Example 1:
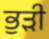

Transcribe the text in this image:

ਭੁੜੀ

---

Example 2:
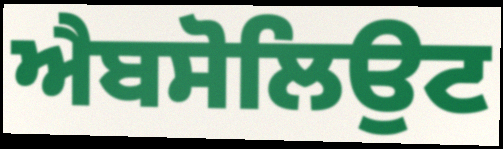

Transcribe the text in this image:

ਐਬਸੋਲਿਉਟ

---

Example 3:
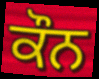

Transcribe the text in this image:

ਕੌਨ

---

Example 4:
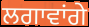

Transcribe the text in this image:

ਲਗਾਵਾਂਗੇ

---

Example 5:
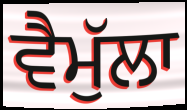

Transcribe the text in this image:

ਵੈਮੁੱਲਾ